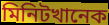
মিনিটখানেক